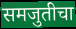
समजुतीचा